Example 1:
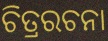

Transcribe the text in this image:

ଚିତ୍ରରଚନା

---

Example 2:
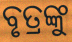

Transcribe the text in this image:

ବୃତ୍ରଙ୍କୁ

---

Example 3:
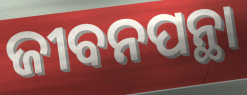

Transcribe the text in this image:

ଜୀବନପନ୍ଥା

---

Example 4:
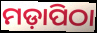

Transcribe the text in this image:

ମଡ଼ାପିଠା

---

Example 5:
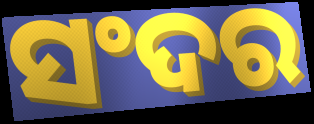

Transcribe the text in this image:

ସଂଦର